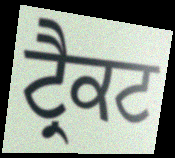
ਟ੍ਰੈਕਟ